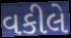
વકીલે